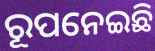
ରୂପନେଇଛି